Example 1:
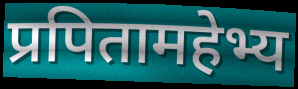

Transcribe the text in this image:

प्रपितामहेभ्य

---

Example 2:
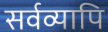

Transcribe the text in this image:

सर्वव्यापि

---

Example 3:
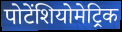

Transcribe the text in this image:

पोटेंशियोमेट्रिक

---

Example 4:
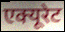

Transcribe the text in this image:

एक्यूरेट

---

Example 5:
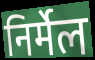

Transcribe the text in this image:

निर्मेल